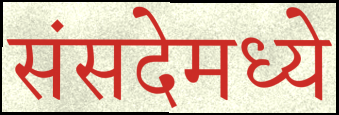
संसदेमध्ये